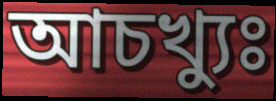
আচখ্যুঃ